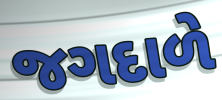
જગદાળે